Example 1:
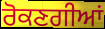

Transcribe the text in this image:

ਰੋਕਣਗੀਆਂ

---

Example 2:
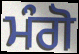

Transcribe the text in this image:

ਮੰਗੋ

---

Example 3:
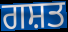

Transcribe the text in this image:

ਗਸ਼ਤ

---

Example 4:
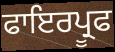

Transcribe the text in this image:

ਫਾਇਰਪ੍ਰੂਫ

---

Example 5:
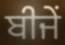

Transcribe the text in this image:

ਬੀਜੇਂ